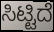
ಸಿಟ್ಟಿದೆ